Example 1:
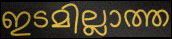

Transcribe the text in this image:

ഇടമില്ലാത്ത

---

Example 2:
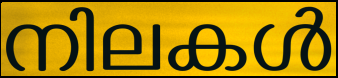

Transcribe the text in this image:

നിലകൾ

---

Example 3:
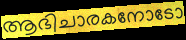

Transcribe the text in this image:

ആഭിചാരകനോടോ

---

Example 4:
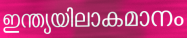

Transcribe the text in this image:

ഇന്ത്യയിലാകമാനം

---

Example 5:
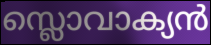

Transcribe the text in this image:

സ്ലൊവാക്യൻ